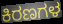
ಕಿರಣಗಳ